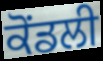
ਕੋਂਡਲੀ